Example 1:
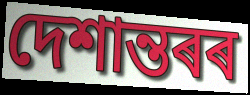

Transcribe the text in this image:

দেশান্তৰৰ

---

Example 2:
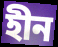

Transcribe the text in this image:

হীন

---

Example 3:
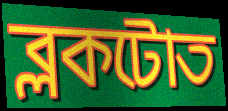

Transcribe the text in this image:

ব্লকটোত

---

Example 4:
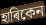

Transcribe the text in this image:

হাৰিকেন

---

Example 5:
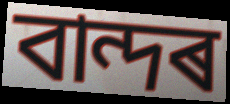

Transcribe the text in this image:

বান্দৰ